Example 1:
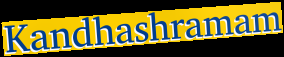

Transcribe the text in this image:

Kandhashramam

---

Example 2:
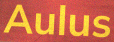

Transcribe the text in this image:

Aulus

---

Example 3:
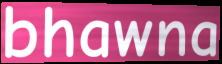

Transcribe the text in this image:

bhawna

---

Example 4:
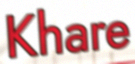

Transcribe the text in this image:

Khare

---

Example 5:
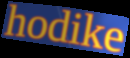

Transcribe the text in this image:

hodike